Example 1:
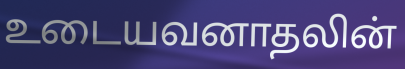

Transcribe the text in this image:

உடையவனாதலின்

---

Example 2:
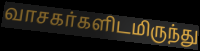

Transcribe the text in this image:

வாசகர்களிடமிருந்து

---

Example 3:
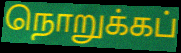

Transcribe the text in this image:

நொறுக்கப்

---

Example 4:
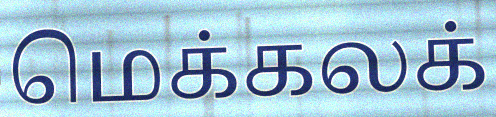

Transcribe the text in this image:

மெக்கலக்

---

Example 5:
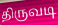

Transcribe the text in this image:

திருவடி